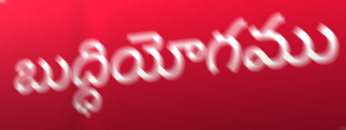
బుద్ధియోగము